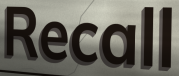
Recall